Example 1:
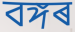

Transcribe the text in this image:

বঙ্গৰ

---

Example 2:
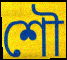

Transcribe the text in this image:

শৌ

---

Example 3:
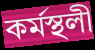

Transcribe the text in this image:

কৰ্মস্থলী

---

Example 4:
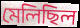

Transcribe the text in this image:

মেলিছিল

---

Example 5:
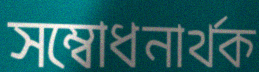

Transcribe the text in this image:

সম্বোধনাৰ্থক